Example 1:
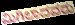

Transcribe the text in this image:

ಮಿಗಿಲಾದವರು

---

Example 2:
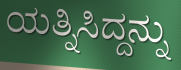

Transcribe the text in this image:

ಯತ್ನಿಸಿದ್ದನ್ನು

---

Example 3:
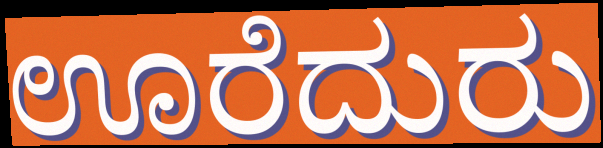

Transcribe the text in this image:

ಊರೆದುರು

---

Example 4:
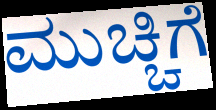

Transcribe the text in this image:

ಮುಚ್ಚಿಗೆ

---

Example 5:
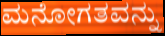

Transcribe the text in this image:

ಮನೋಗತವನ್ನು